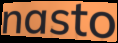
nasto